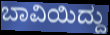
ಬಾವಿಯಿದ್ದು